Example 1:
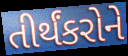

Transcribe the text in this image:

તીર્થંકરોને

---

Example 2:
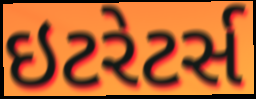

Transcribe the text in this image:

ઇટરેટર્સ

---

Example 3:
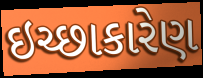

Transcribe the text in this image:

ઇચ્છાકારેણ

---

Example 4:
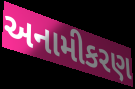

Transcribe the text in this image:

અનામીકરણ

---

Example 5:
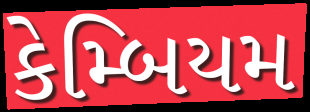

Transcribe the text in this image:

કેમ્બિયમ